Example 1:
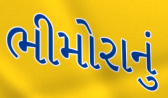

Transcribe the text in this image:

ભીમોરાનું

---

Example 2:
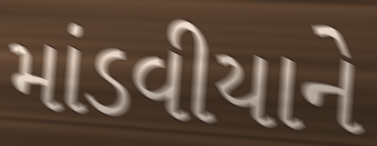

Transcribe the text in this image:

માંડવીયાને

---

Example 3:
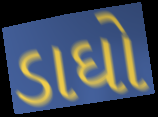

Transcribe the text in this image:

ડાઘો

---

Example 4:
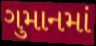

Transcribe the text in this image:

ગુમાનમાં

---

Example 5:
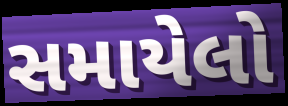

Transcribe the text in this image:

સમાયેલો